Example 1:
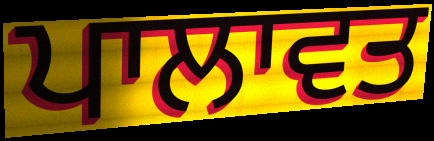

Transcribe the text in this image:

ਪਾਲਾਵਤ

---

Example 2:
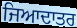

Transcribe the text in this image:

ਜਿਆਦਾਤਰ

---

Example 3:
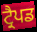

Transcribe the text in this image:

ਟ੍ਰੈਪਡ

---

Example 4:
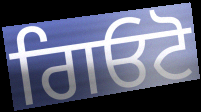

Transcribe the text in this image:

ਗਿਓਟੋ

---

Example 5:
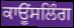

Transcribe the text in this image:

ਕਾਊਂਸਲਿੰਗ